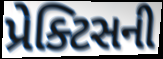
પ્રેક્ટિસની